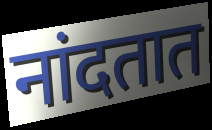
नांदतात